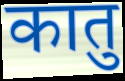
कातु